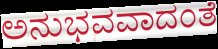
ಅನುಭವವಾದಂತೆ